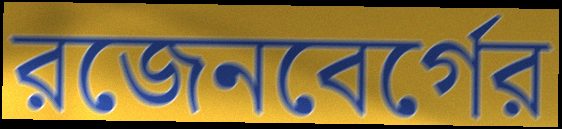
রজেনবের্গের